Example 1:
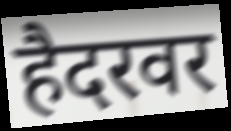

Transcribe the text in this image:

हैदरवर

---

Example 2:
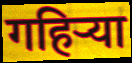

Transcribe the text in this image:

गहिर्‍या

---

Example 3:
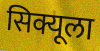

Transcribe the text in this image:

सिक्यूला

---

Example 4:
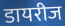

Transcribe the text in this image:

डायरीज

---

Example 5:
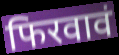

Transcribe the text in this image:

फिरवावं